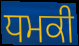
ਧਮਕੀ